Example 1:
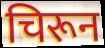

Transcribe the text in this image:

चिरून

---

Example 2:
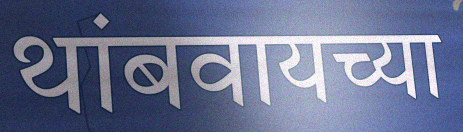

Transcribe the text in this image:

थांबवायच्या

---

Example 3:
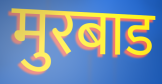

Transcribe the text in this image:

मुरबाड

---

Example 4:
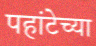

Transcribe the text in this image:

पहांटेच्या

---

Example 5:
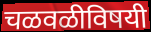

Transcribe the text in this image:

चळवळीविषयी